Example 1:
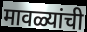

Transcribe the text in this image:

मावळ्यांची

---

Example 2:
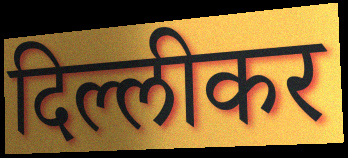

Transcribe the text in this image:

दिल्लीकर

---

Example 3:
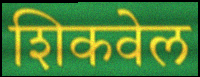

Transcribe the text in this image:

शिकवेल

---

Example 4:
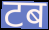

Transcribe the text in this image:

टब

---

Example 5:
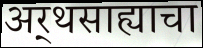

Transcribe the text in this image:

अर्थसाह्याचा